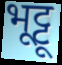
भूट्टू